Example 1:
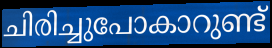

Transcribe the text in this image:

ചിരിച്ചുപോകാറുണ്ട്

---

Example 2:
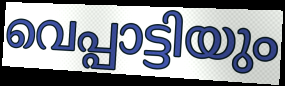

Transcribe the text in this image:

വെപ്പാട്ടിയും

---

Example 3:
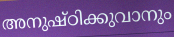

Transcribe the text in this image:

അനുഷ്ഠിക്കുവാനും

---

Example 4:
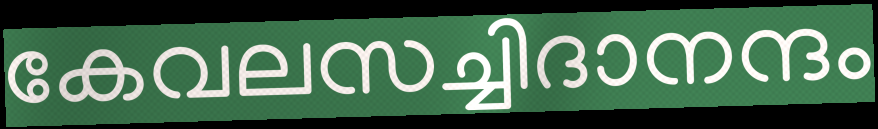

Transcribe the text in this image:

കേവലസച്ചിദാനന്ദം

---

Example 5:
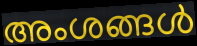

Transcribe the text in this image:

അംശങ്ങൾ